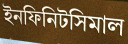
ইনফিনিটসিমাল